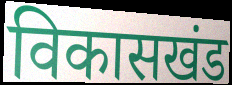
विकासखंड